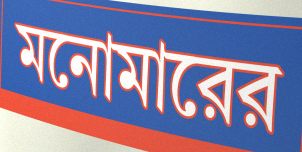
মনোমারের